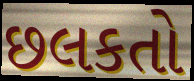
છલકતો